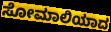
ಸೋಮಾಲಿಯಾದ